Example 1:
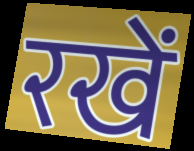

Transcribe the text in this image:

रखें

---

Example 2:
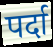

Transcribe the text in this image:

पर्दा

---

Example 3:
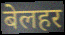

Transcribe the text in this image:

बेलहर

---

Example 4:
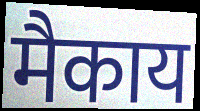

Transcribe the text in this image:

मैकाय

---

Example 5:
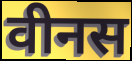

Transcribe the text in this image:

वीनस